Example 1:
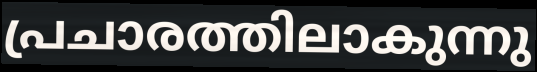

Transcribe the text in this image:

പ്രചാരത്തിലാകുന്നു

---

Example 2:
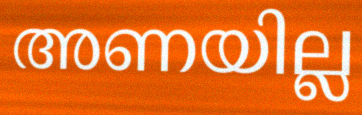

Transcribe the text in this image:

അണയില്ല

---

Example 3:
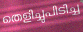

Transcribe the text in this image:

തെളിച്ചുപിടിച്ച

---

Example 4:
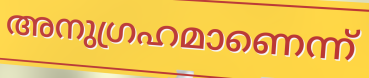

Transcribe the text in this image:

അനുഗ്രഹമാണെന്ന്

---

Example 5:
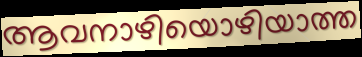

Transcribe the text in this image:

ആവനാഴിയൊഴിയാത്ത